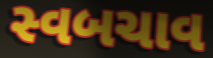
સ્વબચાવ